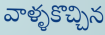
వాళ్ళకొచ్చిన